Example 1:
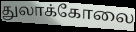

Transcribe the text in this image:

துலாக்கோலை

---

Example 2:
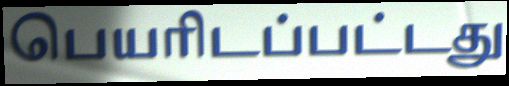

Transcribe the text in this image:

பெயரிடப்பட்டது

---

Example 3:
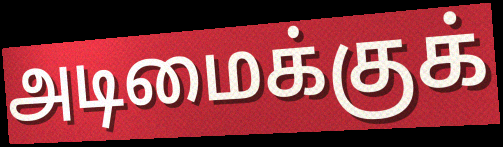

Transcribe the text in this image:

அடிமைக்குக்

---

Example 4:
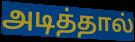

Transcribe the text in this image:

அடித்தால்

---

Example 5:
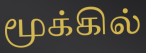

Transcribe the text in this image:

மூக்கில்